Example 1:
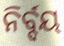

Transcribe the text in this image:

ନିର୍ବ୍ଦୟ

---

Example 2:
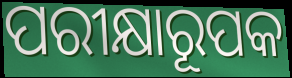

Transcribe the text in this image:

ପରୀକ୍ଷାରୂପକ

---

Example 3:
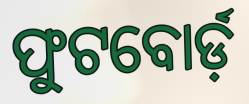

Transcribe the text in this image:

ଫୁଟବୋର୍ଡ଼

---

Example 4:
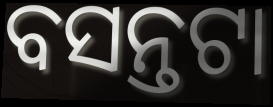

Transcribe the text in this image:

ବସନ୍ତଟା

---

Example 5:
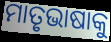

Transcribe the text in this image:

ମାତୃଭାଷାକୁ